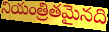
నియంత్రితమైనది